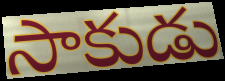
సాకుడు